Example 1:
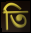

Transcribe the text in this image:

তি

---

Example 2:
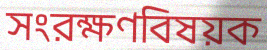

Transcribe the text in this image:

সংরক্ষণবিষয়ক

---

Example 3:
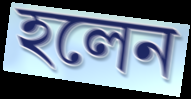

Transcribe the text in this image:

হলেন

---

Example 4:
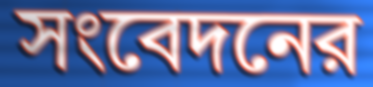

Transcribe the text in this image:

সংবেদনের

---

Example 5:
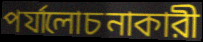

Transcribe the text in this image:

পর্যালোচনাকারী